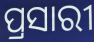
ପ୍ରସାରୀ